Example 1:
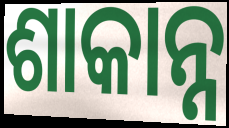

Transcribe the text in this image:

ଶାକାନ୍ନ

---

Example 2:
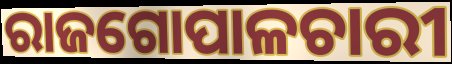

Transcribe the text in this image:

ରାଜଗୋପାଳଚାରୀ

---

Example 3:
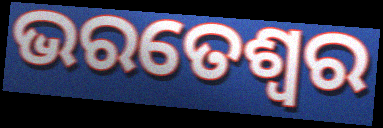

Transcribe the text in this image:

ଭରତେଶ୍ଵର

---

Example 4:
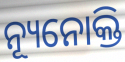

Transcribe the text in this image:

ନ୍ୟୂନୋକ୍ତି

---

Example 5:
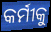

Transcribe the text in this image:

କର୍ମୀକୁ